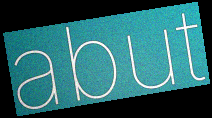
abut